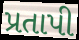
પ્રતાપી